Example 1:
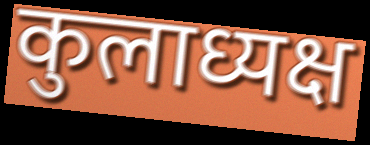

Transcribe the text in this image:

कुलाध्यक्ष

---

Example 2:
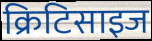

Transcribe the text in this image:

क्रिटिसाइज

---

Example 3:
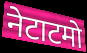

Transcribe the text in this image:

नेटाटमो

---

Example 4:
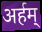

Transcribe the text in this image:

अर्हम्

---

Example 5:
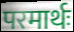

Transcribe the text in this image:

परमार्थः